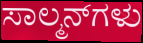
ಸಾಲ್ಮನ್‌ಗಳು